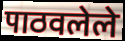
पाठवलेले